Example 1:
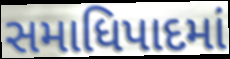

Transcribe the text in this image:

સમાધિપાદમાં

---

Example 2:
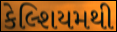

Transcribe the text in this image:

કેલ્શિયમથી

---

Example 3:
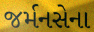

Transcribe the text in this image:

જર્મનસેના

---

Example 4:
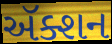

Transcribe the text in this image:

ઍક્શન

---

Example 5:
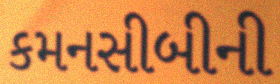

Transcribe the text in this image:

કમનસીબીની